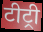
टीट्री